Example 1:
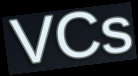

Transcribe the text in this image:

VCs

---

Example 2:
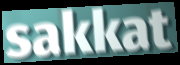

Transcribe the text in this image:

sakkat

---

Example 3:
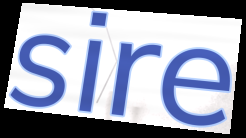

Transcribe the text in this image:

sire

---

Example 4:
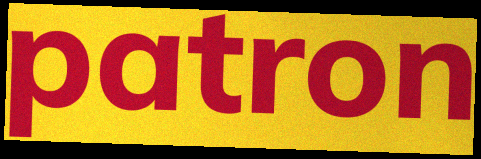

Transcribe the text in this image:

patron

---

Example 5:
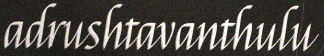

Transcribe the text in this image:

adrushtavanthulu